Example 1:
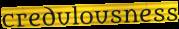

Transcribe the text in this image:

credulousness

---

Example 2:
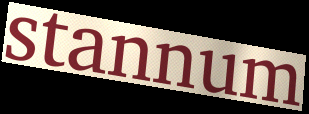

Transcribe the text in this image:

stannum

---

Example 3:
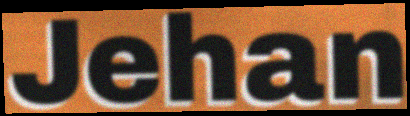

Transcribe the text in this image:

Jehan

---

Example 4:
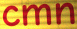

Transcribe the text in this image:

cmn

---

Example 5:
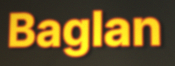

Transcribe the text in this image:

Baglan